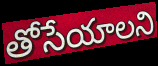
తోసేయాలని